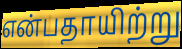
என்பதாயிற்று